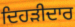
ਦਿਹੜੀਦਾਰ